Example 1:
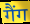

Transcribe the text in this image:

गैंग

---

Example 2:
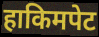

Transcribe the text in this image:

हाकिमपेट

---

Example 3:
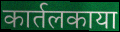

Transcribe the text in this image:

कार्तलकाया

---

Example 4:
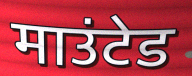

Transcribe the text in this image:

माउंटेड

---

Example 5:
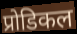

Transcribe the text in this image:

प्रोडिकल